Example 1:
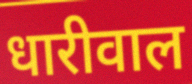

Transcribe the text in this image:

धारीवाल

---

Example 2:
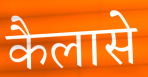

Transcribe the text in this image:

कैलासे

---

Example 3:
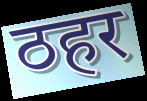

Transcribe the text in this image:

ठहर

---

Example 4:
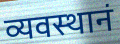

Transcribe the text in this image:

व्यवस्थानं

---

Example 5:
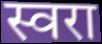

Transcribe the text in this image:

स्वरा